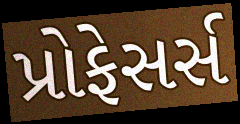
પ્રોફેસર્સ